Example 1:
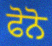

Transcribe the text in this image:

ਫੋਨੋ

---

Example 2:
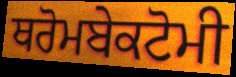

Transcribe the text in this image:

ਥਰੋਮਬੇਕਟੋਮੀ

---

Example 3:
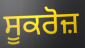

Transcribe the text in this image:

ਸੂਕਰੋਜ਼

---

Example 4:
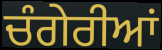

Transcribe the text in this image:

ਚੰਗੇਰੀਆਂ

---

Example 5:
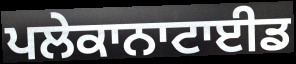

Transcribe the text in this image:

ਪਲੇਕਾਨਾਟਾਈਡ